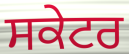
ਸਕੇਟਰ